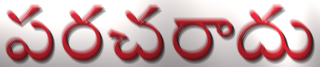
పరచరాదు